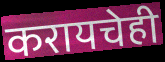
करायचेही